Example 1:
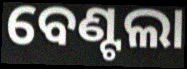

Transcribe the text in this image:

ବେଣ୍ଟଲା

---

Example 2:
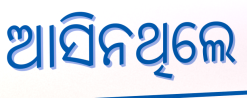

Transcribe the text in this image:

ଆସିନଥିଲେ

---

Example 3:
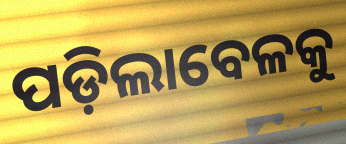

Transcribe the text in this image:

ପଡ଼ିଲାବେଳକୁ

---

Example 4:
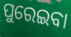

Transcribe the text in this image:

ପୁରେଇବା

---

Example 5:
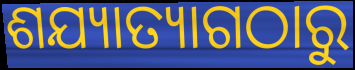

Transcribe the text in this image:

ଶଯ୍ୟାତ୍ୟାଗଠାରୁ